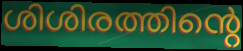
ശിശിരത്തിന്റെ